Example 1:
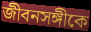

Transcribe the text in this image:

জীবনসঙ্গীকে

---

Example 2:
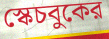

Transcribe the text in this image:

স্কেচবুকের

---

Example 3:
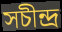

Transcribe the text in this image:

সচীন্দ্র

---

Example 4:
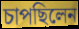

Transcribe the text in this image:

চাপছিলেন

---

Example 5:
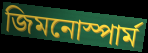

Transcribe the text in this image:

জিমনোস্পার্ম